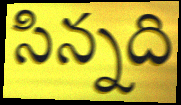
సిన్నది